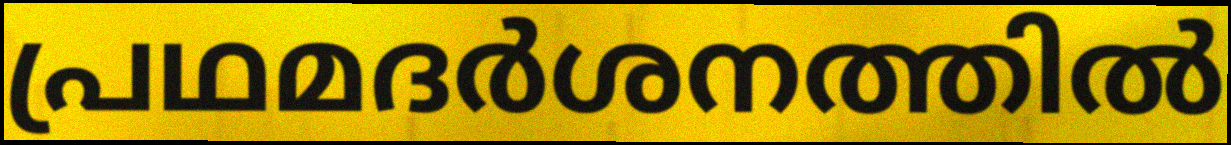
പ്രഥമദർശനത്തിൽ